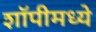
शॉपीमध्ये